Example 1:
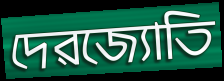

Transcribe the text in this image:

দেৱজ্যোতি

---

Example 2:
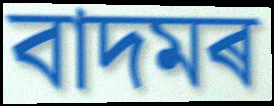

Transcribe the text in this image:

বাদমৰ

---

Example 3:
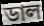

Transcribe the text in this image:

ডাল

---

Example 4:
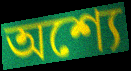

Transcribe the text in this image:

অশ্যে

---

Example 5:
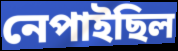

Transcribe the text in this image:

নেপাইছিল